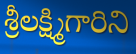
శ్రీలక్ష్మిగారిని